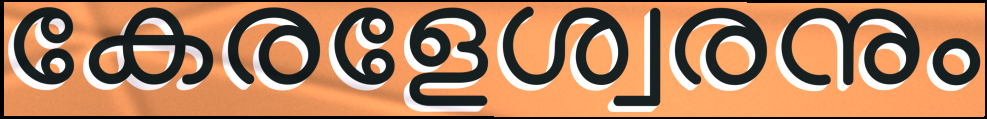
കേരളേശ്വരനും